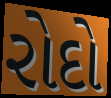
રોદો